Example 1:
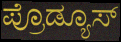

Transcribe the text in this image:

ಪ್ರೊಡ್ಯೂಸ್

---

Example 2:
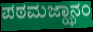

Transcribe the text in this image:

ಪಠಮಜ್ಝಾನಂ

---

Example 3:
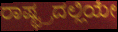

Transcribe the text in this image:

ರಾಷ್ಟ್ರದಲ್ಲಿಯೇ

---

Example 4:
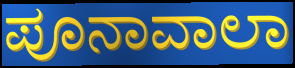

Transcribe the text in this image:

ಪೂನಾವಾಲಾ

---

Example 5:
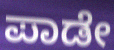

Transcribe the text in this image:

ಪಾಡೇ